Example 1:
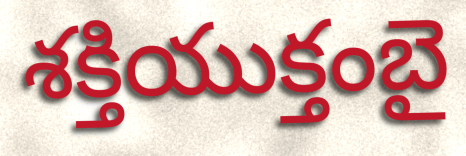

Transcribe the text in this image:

శక్తియుక్తంబై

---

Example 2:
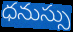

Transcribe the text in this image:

ధనుస్సు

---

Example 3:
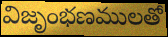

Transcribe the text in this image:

విజృంభణములతో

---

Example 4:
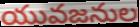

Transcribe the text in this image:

యువజనుల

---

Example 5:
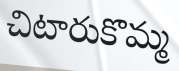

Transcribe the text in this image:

చిటారుకొమ్మ